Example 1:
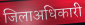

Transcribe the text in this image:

जिलाअधिकारी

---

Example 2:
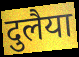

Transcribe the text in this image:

दुलैया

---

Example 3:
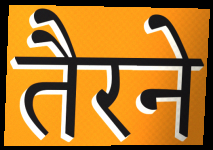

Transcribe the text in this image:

तैरने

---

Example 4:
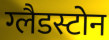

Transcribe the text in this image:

ग्लैडस्टोन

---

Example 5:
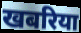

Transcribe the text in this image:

खबरिया